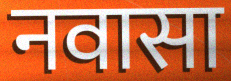
नवासा